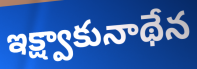
ఇక్ష్వాకునాథేన